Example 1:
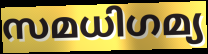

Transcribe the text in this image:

സമധിഗമ്യ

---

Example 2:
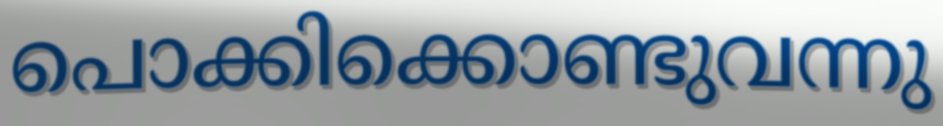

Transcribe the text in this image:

പൊക്കിക്കൊണ്ടുവന്നു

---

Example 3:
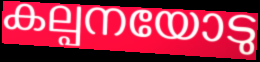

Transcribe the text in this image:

കല്പനയോടു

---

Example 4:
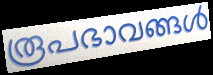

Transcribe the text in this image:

രൂപഭാവങ്ങൾ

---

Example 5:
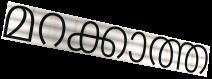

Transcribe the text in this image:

മറക്കാത്ത